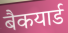
बैकयार्ड